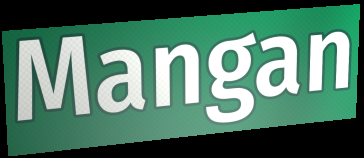
Mangan